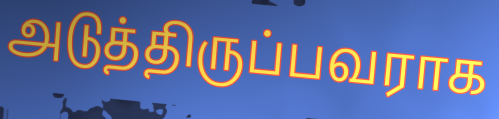
அடுத்திருப்பவராக